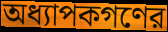
অধ্যাপকগণের